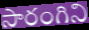
సారంగిని